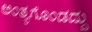
ಅಂತ್ಯಗೊಂಡದ್ದು